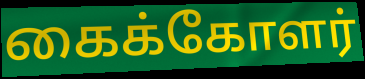
கைக்கோளர்